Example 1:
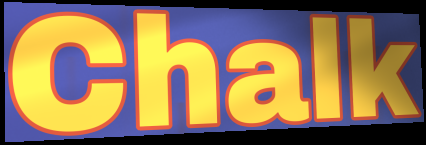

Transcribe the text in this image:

Chalk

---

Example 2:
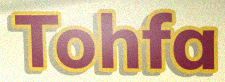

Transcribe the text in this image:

Tohfa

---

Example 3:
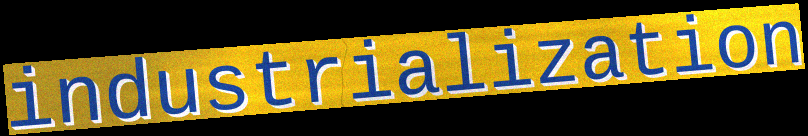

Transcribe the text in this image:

industrialization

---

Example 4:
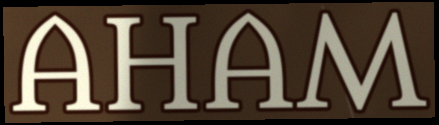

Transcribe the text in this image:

AHAM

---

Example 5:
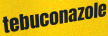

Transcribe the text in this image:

tebuconazole